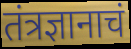
तंत्रज्ञानाचं